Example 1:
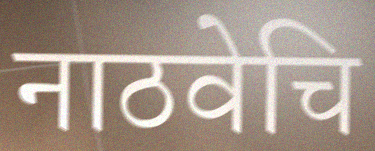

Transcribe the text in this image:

नाठवेचि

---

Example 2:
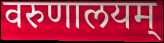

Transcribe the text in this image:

वरुणालयम्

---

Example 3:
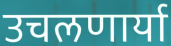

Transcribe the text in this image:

उचलणार्या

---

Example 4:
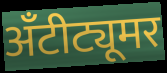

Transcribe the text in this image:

अँटीट्यूमर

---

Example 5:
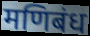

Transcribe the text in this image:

मणिबंध